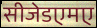
सीजेडएमए